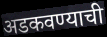
अडकवण्याची